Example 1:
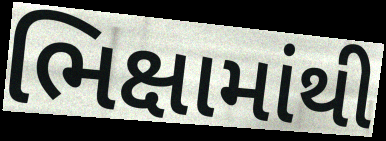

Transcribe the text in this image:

ભિક્ષામાંથી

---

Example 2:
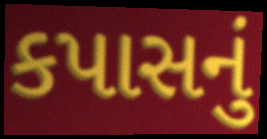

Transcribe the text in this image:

કપાસનું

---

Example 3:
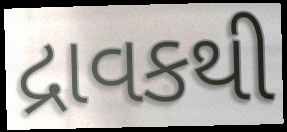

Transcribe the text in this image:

દ્રાવકથી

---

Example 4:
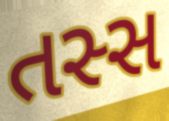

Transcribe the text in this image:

તસ્સ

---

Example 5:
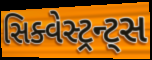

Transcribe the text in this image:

સિક્વેસ્ટ્રન્ટ્સ